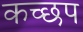
कच्छप